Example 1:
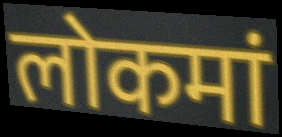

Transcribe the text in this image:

लोकमां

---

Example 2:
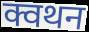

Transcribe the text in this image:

क्वथन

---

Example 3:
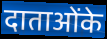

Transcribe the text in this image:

दाताओंके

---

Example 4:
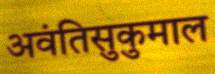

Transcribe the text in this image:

अवंतिसुकुमाल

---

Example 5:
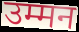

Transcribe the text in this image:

उम्मन